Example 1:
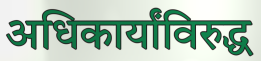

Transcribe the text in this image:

अधिकार्यांविरुद्ध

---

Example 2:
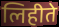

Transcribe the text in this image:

लिहीते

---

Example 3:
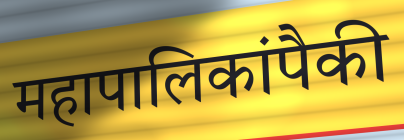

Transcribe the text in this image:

महापालिकांपैकी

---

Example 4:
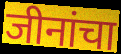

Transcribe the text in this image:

जीनांचा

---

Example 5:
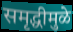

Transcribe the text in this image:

समृद्धीमुळे